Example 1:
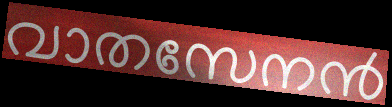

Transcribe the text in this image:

വാതസേനൻ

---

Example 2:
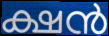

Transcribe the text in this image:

ക്ഷൻ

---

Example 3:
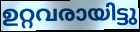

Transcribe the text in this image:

ഉറ്റവരായിട്ടു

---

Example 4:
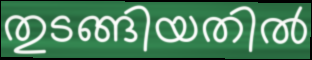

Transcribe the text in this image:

തുടങ്ങിയതിൽ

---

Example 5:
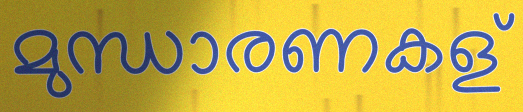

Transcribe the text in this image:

മുന്ധാരണകള്